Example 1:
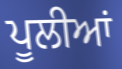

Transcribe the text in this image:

ਪੂਲੀਆਂ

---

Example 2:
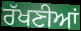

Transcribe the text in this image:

ਰੱਖਣੀਆਂ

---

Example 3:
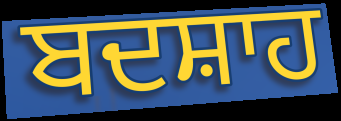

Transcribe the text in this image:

ਬਦਸ਼ਾਹ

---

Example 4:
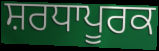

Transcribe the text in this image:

ਸ਼ਰਧਾਪੂਰਕ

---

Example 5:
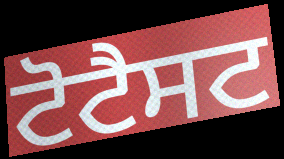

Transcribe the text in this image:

ਟੋਟੈਸਟ